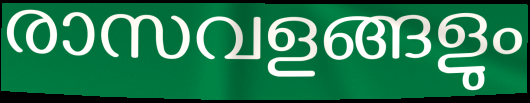
രാസവളങ്ങളും